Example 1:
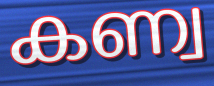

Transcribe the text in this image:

കണ്വ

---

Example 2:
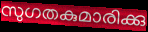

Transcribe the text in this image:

സുഗതകുമാരിക്കു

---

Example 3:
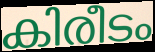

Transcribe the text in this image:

കിരീടം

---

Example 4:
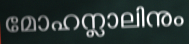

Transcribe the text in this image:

മോഹന്ലാലിനും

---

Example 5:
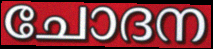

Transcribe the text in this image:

ചോദന